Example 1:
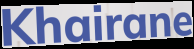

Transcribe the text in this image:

Khairane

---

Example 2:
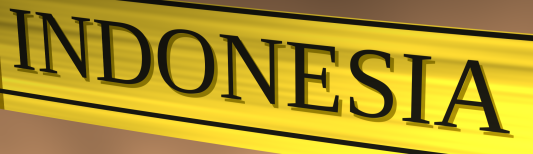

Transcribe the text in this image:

INDONESIA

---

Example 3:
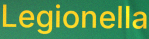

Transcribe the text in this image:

Legionella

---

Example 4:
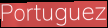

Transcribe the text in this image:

Portuguez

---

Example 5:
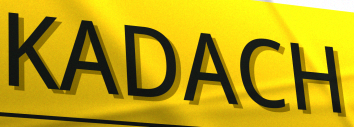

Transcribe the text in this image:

KADACH